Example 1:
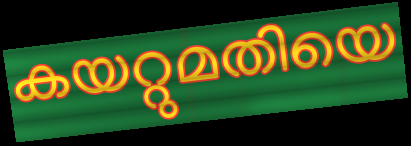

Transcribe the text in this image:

കയറ്റുമതിയെ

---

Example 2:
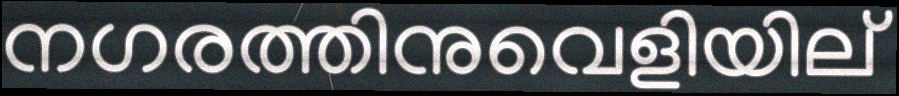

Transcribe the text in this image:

നഗരത്തിനുവെളിയില്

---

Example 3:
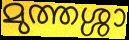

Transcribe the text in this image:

മുത്തശ്ശാ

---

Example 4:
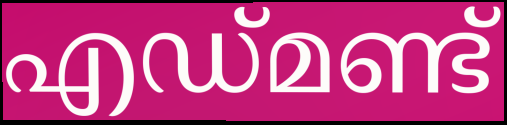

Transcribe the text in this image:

എഡ്മണ്ട്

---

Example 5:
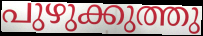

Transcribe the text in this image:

പുഴുക്കുത്തു